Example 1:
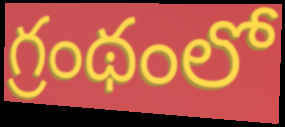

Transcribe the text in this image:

గ్రంథంలో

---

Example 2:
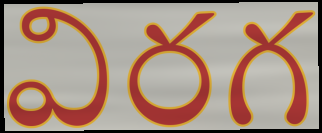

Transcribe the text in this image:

విరగ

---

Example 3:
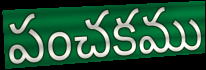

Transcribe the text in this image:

పంచకము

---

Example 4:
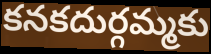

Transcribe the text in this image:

కనకదుర్గమ్మకు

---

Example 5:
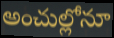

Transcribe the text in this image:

అంచుల్లోనూ